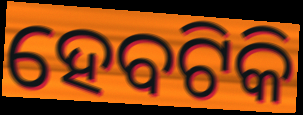
ହେବଟିକି